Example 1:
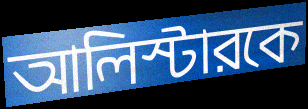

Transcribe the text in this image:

আলিস্টারকে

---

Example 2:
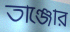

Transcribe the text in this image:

তাঞ্জোর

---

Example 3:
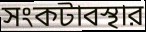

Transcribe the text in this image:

সংকটাবস্থার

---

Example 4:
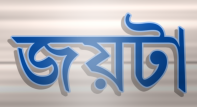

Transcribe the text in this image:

জয়টা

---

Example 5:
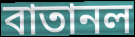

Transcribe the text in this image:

বাতানল